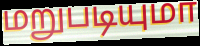
மறுபடியுமா